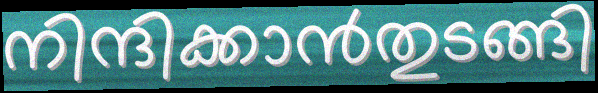
നിന്ദിക്കാൻതുടങ്ങി